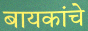
बायकांचे